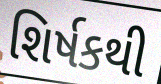
શિર્ષકથી